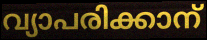
വ്യാപരിക്കാന്